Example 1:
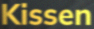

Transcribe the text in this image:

Kissen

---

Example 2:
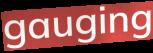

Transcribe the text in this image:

gauging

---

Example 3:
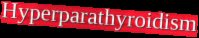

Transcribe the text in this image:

Hyperparathyroidism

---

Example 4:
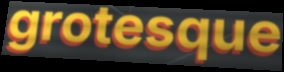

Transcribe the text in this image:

grotesque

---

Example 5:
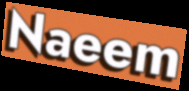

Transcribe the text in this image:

Naeem